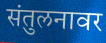
संतुलनावर